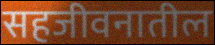
सहजीवनातील